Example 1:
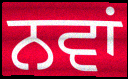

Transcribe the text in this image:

ਨਵਾਂ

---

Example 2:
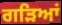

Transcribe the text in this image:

ਗੜਿਆਂ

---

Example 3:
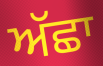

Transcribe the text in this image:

ਅੱਛਾ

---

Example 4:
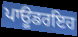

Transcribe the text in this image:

ਪਾਊਡਰਇਹ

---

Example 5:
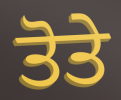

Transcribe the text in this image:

ਤੋਤੇ